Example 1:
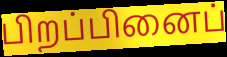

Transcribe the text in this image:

பிறப்பினைப்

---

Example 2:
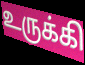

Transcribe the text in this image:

உருக்கி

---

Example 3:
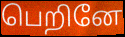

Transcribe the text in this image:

பெறினே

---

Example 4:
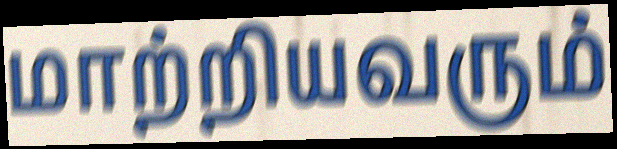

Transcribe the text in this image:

மாற்றியவரும்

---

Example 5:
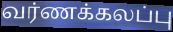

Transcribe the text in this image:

வர்ணக்கலப்பு